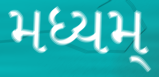
મધ્યમ્